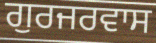
ਗੁਰਜਰਵਾਸ